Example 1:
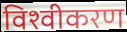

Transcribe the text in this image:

विश्वीकरण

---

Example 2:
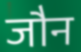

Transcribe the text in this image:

जौन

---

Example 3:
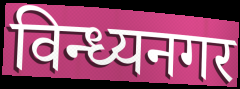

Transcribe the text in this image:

विन्ध्यनगर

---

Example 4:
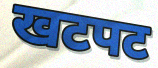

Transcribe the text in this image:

खटपट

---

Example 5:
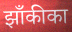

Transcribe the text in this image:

झाँकीका